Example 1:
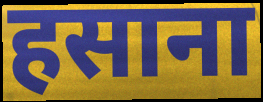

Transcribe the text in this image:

हसाना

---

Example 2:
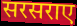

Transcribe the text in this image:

सरसराए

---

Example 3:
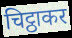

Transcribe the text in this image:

चिट्ठाकर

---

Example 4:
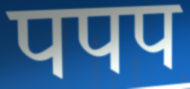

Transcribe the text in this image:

पपप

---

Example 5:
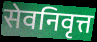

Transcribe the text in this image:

सेवनिवृत्त